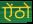
ऐंठो